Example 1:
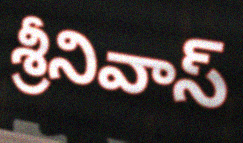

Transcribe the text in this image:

శ్రీనివాస్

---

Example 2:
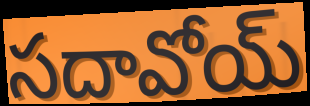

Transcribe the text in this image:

సదావోయ్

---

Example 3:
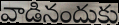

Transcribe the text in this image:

వాడినందుకు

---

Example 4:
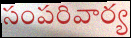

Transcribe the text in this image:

సంపరివార్య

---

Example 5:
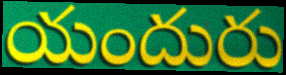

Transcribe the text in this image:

యందురు